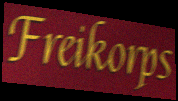
Freikorps